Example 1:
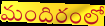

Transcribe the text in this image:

మందిరంలో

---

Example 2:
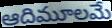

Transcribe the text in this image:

ఆదిమూలమే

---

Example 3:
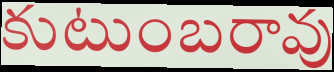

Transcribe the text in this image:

కుటుంబరావు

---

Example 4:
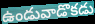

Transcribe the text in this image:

ఉండువాడొకడు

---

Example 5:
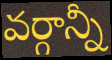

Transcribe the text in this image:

వర్గాన్నీ